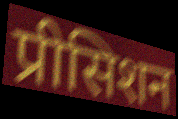
प्रीसिशन